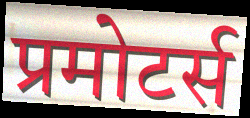
प्रमोटर्स